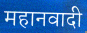
महानवादी